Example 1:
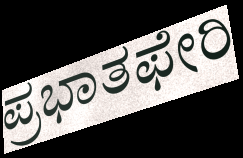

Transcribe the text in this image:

ಪ್ರಭಾತಫೇರಿ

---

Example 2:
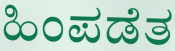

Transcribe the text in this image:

ಹಿಂಪಡೆತ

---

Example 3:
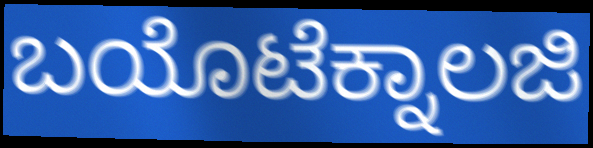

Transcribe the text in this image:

ಬಯೊಟೆಕ್ನಾಲಜಿ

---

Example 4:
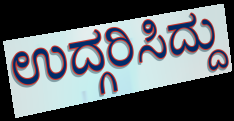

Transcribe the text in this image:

ಉದ್ಗರಿಸಿದ್ದು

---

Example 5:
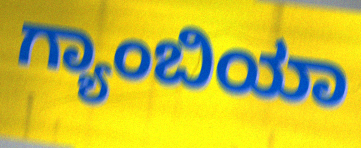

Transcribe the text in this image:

ಗ್ಯಾಂಬಿಯಾ